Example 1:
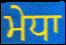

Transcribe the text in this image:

ਮੇਧਾ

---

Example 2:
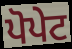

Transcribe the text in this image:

ਪੋਪੇਟ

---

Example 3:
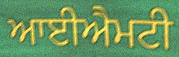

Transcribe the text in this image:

ਆਈਐਮਟੀ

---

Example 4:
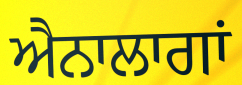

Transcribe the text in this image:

ਐਨਾਲਾਗਾਂ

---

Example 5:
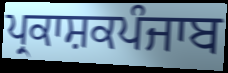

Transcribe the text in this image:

ਪ੍ਰਕਾਸ਼ਕਪੰਜਾਬ